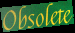
Obsolete